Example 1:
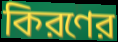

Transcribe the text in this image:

কিরণের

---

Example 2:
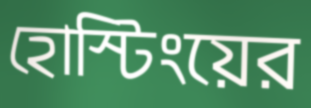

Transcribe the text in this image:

হোস্টিংয়ের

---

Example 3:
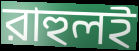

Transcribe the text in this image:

রাহুলই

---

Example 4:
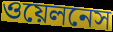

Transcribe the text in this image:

ওয়েলনেস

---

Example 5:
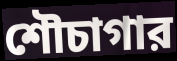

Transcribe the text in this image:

শৌচাগার